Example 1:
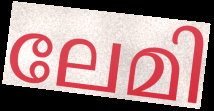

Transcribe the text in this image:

ലേമി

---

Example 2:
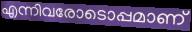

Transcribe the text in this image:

എന്നിവരോടൊപ്പമാണ്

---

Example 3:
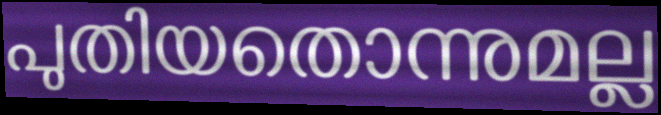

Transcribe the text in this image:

പുതിയതൊന്നുമല്ല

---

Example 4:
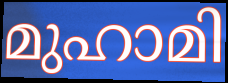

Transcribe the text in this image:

മുഹാമി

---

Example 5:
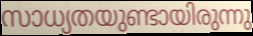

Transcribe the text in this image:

സാധ്യതയുണ്ടായിരുന്നു